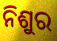
ନିଶୁର